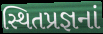
સ્થિતપ્રજ્ઞનાં